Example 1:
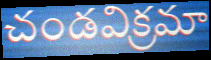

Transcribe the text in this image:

చండవిక్రమా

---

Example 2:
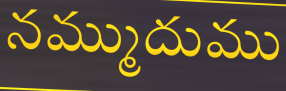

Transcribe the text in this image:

నమ్ముదుము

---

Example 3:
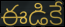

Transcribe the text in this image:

ఈడికే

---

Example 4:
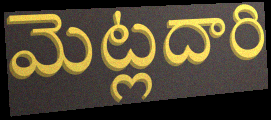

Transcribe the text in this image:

మెట్లదారి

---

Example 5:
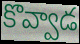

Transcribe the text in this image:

కొవ్వాడ